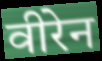
वीरेन